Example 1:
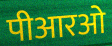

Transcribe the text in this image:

पीआरओ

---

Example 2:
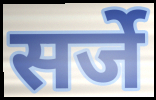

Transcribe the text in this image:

सर्जे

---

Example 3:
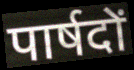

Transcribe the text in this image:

पार्षदों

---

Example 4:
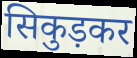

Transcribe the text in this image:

सिकुड़कर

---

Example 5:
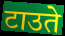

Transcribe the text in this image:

टाउते